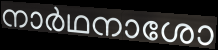
നാർഥനാശോ